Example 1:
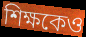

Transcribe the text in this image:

শিক্ষকেও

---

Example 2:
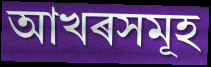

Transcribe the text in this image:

আখৰসমূহ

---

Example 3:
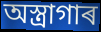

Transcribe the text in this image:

অস্ত্ৰাগাৰ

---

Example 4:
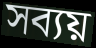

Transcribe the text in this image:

সব্যয়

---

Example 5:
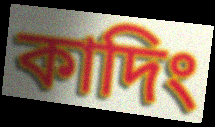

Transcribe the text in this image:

কাদিং